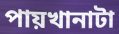
পায়খানাটা